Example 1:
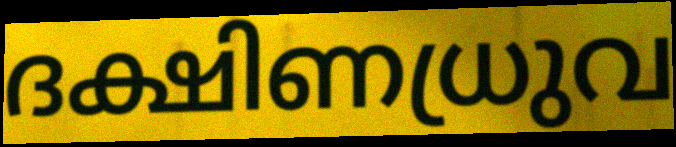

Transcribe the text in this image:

ദക്ഷിണധ്രുവ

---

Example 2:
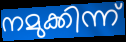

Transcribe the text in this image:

നമുക്കിന്ന്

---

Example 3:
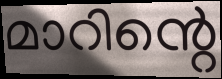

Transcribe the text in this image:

മാറിന്റെ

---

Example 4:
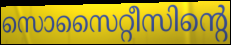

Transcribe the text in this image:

സൊസൈറ്റീസിന്റെ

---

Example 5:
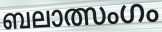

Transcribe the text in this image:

ബലാത്സംഗം